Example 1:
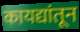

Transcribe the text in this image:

कायद्यांतून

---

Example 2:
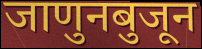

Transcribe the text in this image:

जाणुनबुजून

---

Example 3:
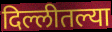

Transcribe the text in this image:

दिल्लीतल्या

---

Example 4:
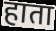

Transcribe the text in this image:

हाता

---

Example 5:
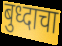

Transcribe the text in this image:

बुध्दाचा